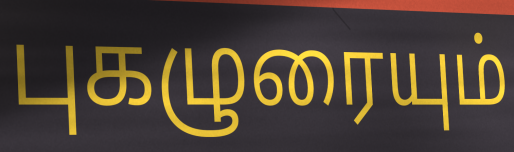
புகழுரையும்